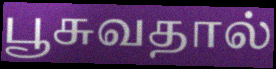
பூசுவதால்